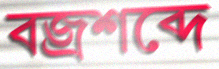
বজ্রশব্দে